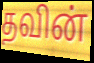
தவின்